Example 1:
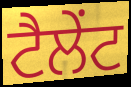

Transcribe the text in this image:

ਟੈਲੇੰਟ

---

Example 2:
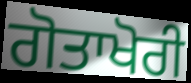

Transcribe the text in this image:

ਗੋਤਾਖੋਰੀ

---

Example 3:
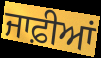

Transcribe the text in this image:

ਜਾਫ਼ੀਆਂ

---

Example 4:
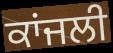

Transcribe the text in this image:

ਕਾਂਜਲੀ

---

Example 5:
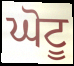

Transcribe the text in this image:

ਘੋਟੂ